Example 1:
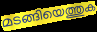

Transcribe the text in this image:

മടങ്ങിയെത്തുക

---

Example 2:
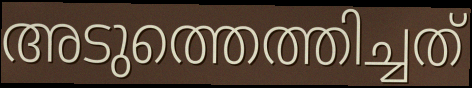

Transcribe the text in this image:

അടുത്തെത്തിച്ചത്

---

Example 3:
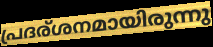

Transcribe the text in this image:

പ്രദര്ശനമായിരുന്നു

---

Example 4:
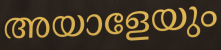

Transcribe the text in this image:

അയാളേയും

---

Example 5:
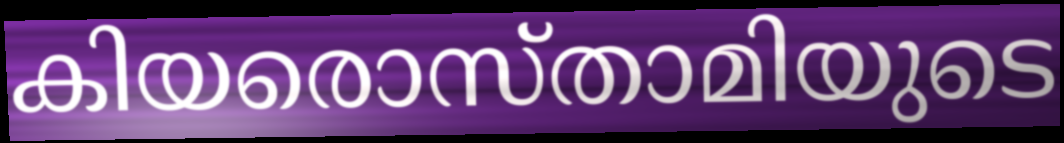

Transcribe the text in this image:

കിയരൊസ്താമിയുടെ